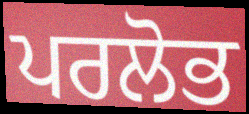
ਪਰਲੋਭ